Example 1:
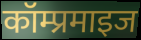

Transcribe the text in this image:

कॉम्प्रमाइज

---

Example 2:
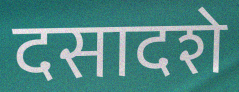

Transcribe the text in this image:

दसादशे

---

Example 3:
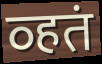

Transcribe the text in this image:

व्हतं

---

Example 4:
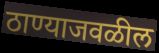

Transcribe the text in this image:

ठाण्याजवळील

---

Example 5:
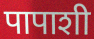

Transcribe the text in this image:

पापाशी